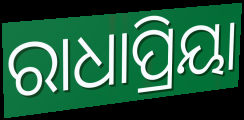
ରାଧାପ୍ରିୟା